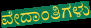
ವೇದಾಂತಿಗಳು